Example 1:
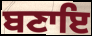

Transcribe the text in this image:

ਬਣਾਇ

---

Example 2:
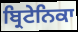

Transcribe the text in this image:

ਬ੍ਰਿਟੇਨਿਕਾ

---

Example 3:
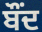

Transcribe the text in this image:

ਬੌਂਦ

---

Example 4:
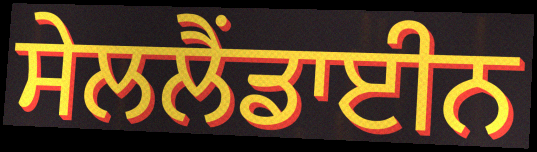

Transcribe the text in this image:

ਸੇਲਲੈਂਡਾਈਨ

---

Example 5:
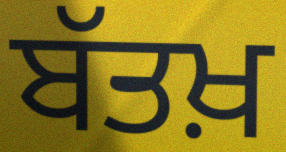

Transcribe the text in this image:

ਬੱਤਖ਼